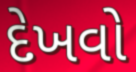
દેખવો